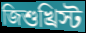
জিশুখ্রিস্ট